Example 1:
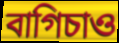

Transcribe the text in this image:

বাগিচাও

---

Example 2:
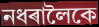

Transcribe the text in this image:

নধৰালৈকে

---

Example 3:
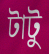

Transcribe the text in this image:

টাটু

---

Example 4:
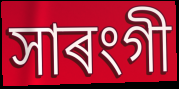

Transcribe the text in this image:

সাৰংগী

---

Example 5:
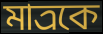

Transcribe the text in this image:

মাত্ৰকে